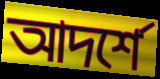
আদর্শে